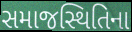
સમાજસ્થિતિના